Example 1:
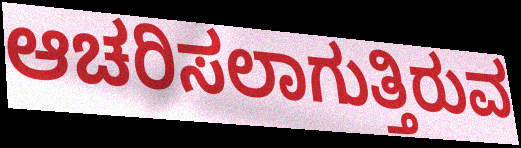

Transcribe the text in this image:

ಆಚರಿಸಲಾಗುತ್ತಿರುವ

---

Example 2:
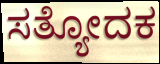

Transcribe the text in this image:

ಸತ್ಯೋದಕ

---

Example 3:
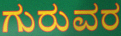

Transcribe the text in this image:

ಗುರುವರ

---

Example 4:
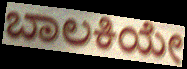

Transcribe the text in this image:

ಬಾಲಕಿಯೇ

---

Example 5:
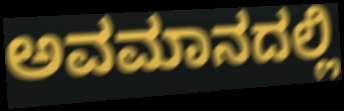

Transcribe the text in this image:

ಅವಮಾನದಲ್ಲಿ